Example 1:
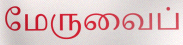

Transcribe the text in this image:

மேருவைப்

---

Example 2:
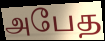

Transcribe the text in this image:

அபேத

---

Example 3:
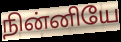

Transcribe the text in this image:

நின்னியே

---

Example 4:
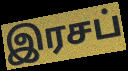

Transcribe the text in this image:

இரசப்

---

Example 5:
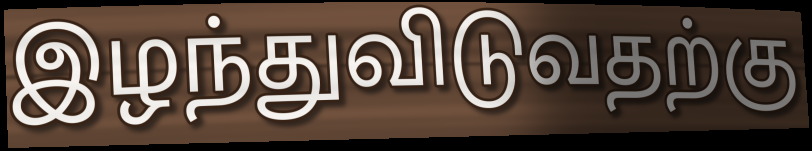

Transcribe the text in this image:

இழந்துவிடுவதற்கு